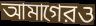
আমাগেরও